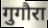
गुगौरा